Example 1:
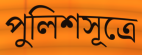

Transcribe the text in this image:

পুলিশসূত্রে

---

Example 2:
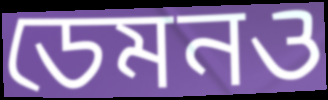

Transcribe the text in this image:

ডেমনও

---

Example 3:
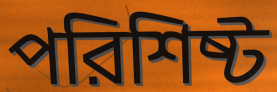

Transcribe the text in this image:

পরিশিষ্ট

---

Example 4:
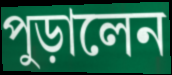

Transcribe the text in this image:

পুড়ালেন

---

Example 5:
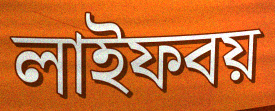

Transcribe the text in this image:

লাইফবয়